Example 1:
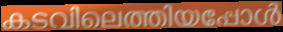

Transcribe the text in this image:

കടവിലെത്തിയപ്പോൾ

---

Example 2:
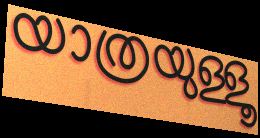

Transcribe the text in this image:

യാത്രയുള്ളൂ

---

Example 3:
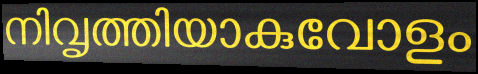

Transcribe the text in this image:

നിവൃത്തിയാകുവോളം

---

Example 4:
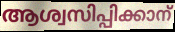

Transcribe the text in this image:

ആശ്വസിപ്പിക്കാന്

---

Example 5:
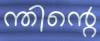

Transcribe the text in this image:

ന്തിന്റെ